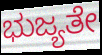
ಭುಜ್ಯತೇ